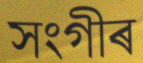
সংগীৰ